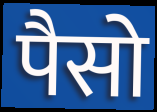
पैसो